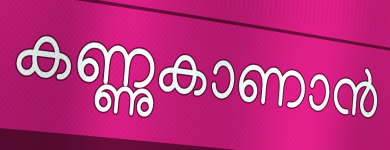
കണ്ണുകാണാൻ